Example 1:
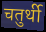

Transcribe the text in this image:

चतुर्थी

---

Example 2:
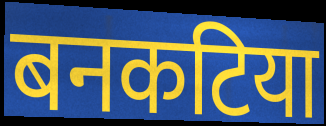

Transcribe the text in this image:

बनकटिया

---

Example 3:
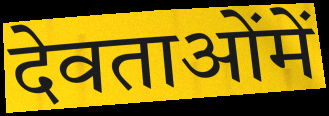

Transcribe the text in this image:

देवताओंमें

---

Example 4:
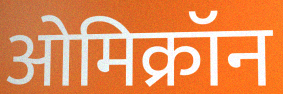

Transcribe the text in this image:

ओमिक्रॉन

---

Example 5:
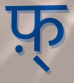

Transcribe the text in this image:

फ़्